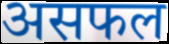
असफल